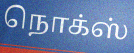
நொக்ஸ்